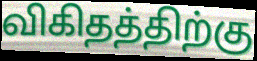
விகிதத்திற்கு